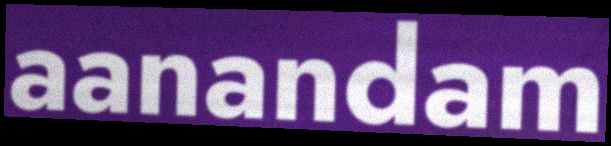
aanandam